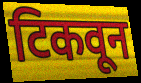
टिकवून